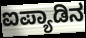
ಐಪ್ಯಾಡಿನ